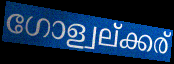
ഗോള്വല്ക്കര്